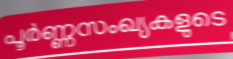
പൂർണ്ണസംഖ്യകളുടെ